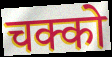
चक्को